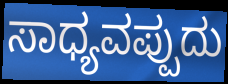
ಸಾಧ್ಯವಪ್ಪುದು